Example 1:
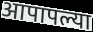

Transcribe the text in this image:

आपापल्या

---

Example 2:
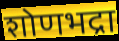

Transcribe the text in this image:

शोणभद्रा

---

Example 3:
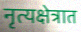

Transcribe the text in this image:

नृत्यक्षेत्रात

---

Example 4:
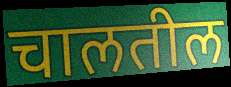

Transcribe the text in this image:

चालतील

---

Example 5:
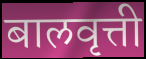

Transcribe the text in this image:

बालवृत्ती